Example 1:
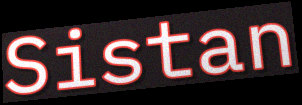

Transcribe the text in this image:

Sistan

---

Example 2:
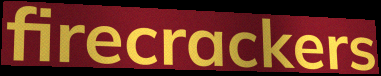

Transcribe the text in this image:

firecrackers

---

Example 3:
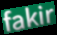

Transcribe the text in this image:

fakir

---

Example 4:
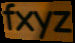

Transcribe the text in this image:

fxyz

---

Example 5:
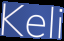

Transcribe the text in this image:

Keli